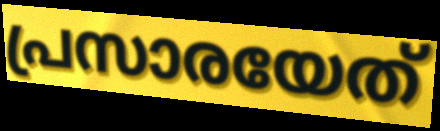
പ്രസാരയേത്